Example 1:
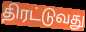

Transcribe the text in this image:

திரட்டுவது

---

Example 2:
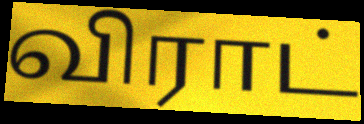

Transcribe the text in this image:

விராட்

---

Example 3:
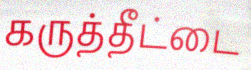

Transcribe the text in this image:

கருத்தீட்டை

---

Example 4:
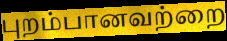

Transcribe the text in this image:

புறம்பானவற்றை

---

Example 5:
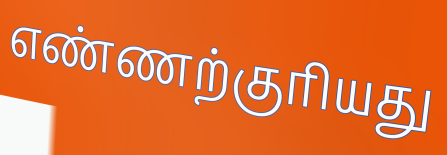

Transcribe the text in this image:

எண்ணற்குரியது